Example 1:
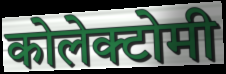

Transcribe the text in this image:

कोलेक्टोमी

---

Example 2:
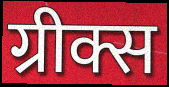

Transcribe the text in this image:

ग्रीक्स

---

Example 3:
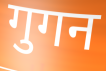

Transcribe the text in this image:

गुगन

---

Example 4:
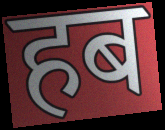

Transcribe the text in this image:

हब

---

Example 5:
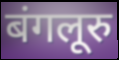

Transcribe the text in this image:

बंगलूरु